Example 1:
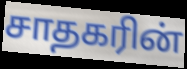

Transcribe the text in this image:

சாதகரின்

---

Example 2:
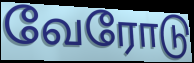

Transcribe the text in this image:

வேரோடு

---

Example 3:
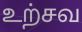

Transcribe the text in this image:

உற்சவ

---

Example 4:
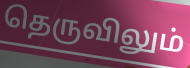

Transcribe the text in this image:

தெருவிலும்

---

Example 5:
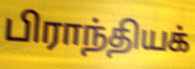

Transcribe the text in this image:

பிராந்தியக்